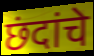
छंदांचे